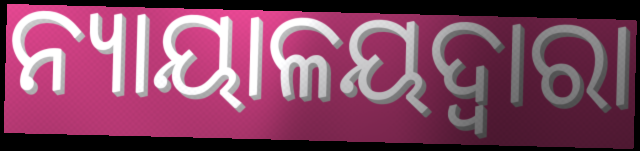
ନ୍ୟାୟାଳୟଦ୍ୱାରା